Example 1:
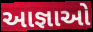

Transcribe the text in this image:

આજ્ઞાઓ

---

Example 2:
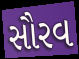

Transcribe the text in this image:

સૌરવ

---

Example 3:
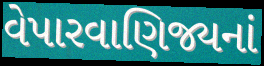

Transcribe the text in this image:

વેપારવાણિજ્યનાં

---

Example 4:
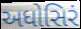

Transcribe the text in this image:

અધોસિરં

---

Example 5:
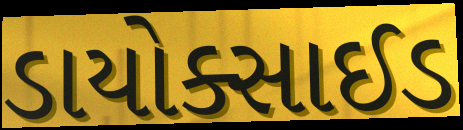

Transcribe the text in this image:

ડાયોક્સાઈડ